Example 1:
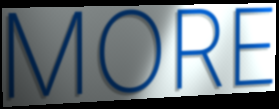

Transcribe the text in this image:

MORE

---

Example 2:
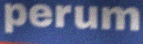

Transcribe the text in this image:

perum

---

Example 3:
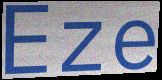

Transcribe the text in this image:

Eze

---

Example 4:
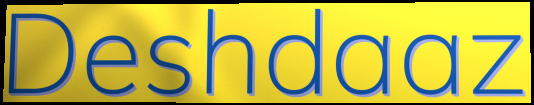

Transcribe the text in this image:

Deshdaaz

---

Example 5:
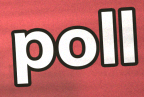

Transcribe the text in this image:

poll